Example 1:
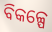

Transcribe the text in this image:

ବିକଳ୍ପେ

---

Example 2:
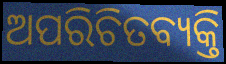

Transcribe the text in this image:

ଅପରିଚିତବ୍ୟକ୍ତି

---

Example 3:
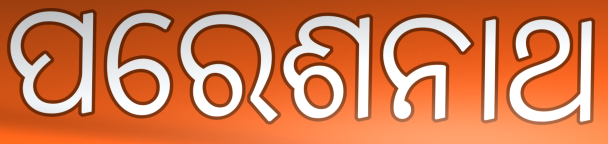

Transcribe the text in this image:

ପରେଶନାଥ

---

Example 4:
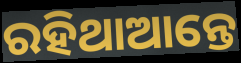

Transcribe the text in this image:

ରହିଥାଆନ୍ତେ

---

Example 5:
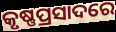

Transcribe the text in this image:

କୃଷ୍ଣପ୍ରସାଦରେ